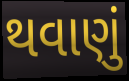
થવાણું